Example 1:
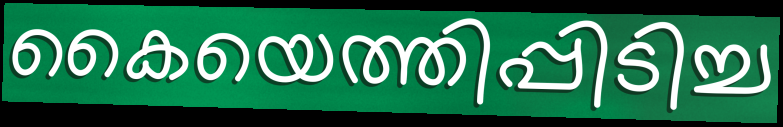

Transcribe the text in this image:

കൈയെത്തിപ്പിടിച്ച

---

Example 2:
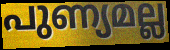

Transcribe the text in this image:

പുണ്യമല്ല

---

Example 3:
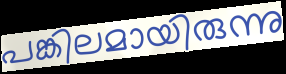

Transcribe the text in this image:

പങ്കിലമായിരുന്നു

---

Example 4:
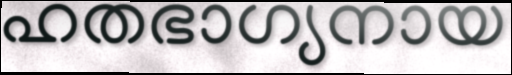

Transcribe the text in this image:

ഹതഭാഗ്യനായ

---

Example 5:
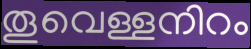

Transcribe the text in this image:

തൂവെള്ളനിറം